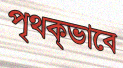
পৃথক্ভাবে